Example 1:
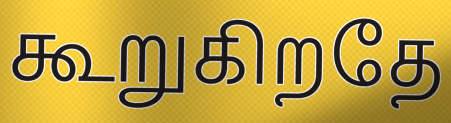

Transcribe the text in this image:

கூறுகிறதே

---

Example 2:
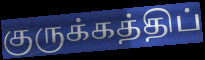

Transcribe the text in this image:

குருக்கத்திப்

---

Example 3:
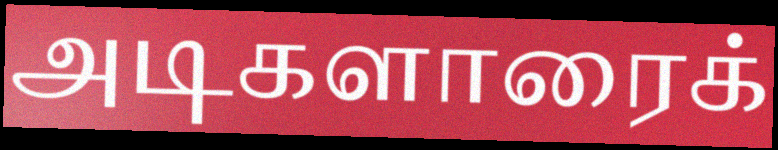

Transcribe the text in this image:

அடிகளாரைக்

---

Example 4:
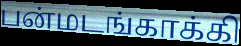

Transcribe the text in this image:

பன்மடங்காக்கி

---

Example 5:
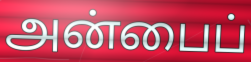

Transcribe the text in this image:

அன்பைப்